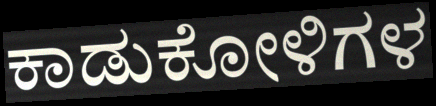
ಕಾಡುಕೋಳಿಗಳ